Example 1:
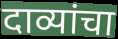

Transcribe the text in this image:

दाव्यांचा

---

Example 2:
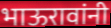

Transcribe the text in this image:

भाऊरावांनी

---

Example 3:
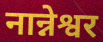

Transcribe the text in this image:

नान्नेश्वर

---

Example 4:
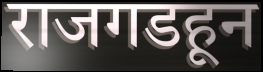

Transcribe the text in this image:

राजगडहून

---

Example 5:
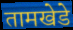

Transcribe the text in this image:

तामखेडे